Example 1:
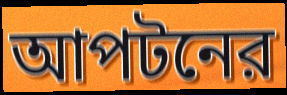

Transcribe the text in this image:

আপটনের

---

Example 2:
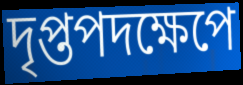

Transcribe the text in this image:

দৃপ্তপদক্ষেপে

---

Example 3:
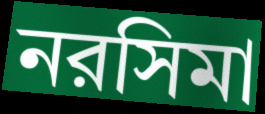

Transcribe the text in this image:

নরসিমা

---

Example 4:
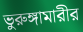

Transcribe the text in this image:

ভুরুঙ্গামারীর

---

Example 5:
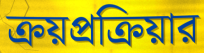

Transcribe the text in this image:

ক্রয়প্রক্রিয়ার